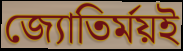
জ্যোতির্ময়ই